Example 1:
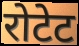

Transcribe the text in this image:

रोटेट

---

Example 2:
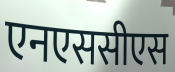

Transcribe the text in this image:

एनएससीएस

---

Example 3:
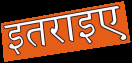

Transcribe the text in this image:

इतराइए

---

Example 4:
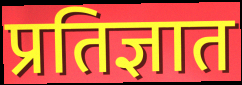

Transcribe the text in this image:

प्रतिज्ञात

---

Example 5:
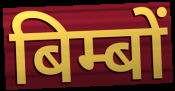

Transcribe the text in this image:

बिम्बों